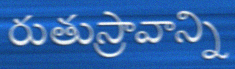
రుతుస్రావాన్ని